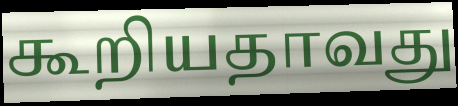
கூறியதாவது